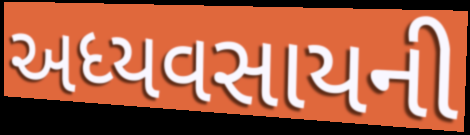
અધ્યવસાયની